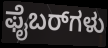
ಫೈಬರ್‌ಗಳು